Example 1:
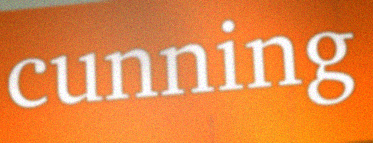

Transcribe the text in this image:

cunning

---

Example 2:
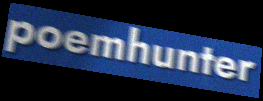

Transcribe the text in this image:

poemhunter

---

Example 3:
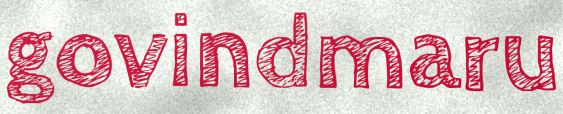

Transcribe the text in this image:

govindmaru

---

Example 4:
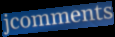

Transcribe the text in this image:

jcomments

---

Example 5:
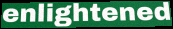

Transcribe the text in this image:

enlightened